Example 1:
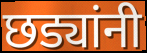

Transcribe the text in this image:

छड्यांनी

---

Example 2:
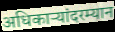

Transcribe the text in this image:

अधिकाऱ्यांदरम्यान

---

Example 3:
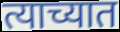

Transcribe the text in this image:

त्याच्यात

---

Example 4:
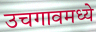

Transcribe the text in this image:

उचगावमध्ये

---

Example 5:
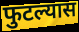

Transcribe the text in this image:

फुटल्यास